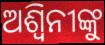
ଅଶ୍ୱିନୀଙ୍କୁ